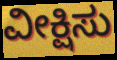
ವೀಕ್ಷಿಸು